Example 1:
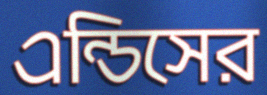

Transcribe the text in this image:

এন্ডিসের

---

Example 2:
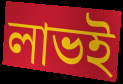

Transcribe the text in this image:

লাভই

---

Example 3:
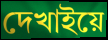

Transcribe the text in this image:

দেখাইয়ে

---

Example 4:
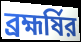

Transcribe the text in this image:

ব্রহ্মর্ষির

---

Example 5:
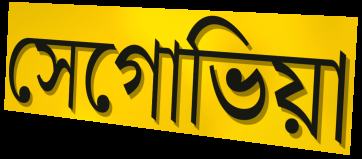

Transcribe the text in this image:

সেগোভিয়া